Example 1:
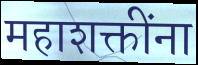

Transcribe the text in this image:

महाशक्तींना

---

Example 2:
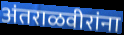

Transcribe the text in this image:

अंतराळवीरांना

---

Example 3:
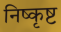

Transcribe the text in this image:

निष्कृष्ट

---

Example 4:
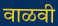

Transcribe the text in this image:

वाळवी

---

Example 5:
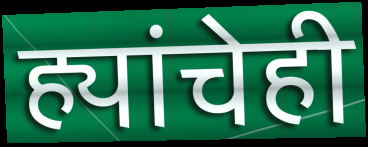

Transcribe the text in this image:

ह्यांचेही